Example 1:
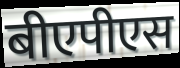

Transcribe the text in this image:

बीएपीएस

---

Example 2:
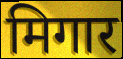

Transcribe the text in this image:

मिगार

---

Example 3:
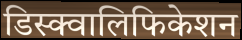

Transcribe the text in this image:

डिस्क्वालिफिकेशन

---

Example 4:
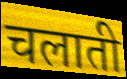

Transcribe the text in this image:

चलाती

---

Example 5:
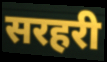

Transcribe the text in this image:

सरहरी